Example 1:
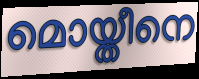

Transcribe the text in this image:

മൊയ്തീനെ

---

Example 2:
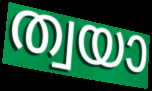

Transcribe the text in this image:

ത്വയാ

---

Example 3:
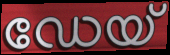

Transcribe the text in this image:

ഡേയ്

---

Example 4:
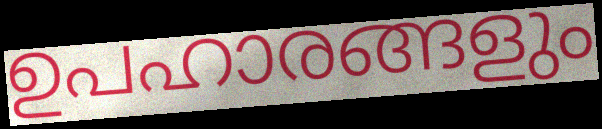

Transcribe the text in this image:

ഉപഹാരങ്ങളും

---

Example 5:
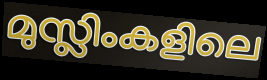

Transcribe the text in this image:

മുസ്ലിംകളിലെ